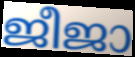
ജീജാ